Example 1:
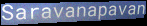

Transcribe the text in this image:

Saravanapavan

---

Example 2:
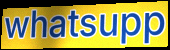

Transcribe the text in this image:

whatsupp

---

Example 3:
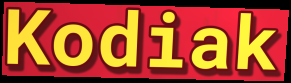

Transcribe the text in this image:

Kodiak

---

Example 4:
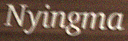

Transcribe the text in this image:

Nyingma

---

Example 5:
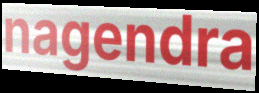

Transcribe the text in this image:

nagendra